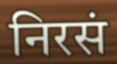
निरसं